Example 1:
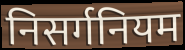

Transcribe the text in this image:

निसर्गनियम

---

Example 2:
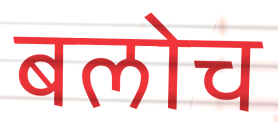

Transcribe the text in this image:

बलोच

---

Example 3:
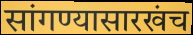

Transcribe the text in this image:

सांगण्यासारखंच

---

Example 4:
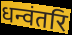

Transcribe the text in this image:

धन्वंतरि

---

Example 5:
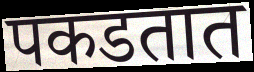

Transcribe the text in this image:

पकडतात